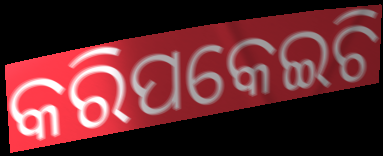
କରିପକେଇଚି